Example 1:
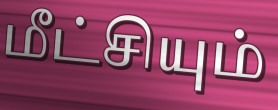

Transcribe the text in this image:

மீட்சியும்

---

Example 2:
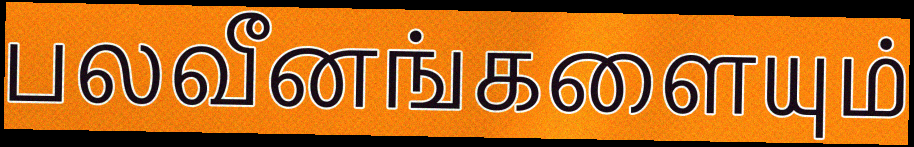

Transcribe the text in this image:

பலவீனங்களையும்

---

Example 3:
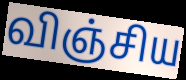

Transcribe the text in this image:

விஞ்சிய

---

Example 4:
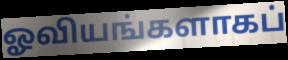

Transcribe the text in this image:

ஓவியங்களாகப்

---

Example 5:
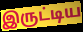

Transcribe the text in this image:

இருட்டிய